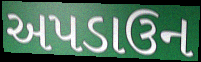
અપડાઉન